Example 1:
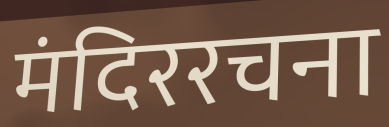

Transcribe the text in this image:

मंदिररचना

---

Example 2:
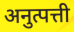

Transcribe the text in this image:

अनुत्पत्ती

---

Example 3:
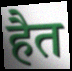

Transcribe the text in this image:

हैत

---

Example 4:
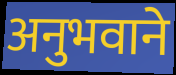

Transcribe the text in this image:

अनुभवाने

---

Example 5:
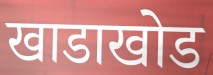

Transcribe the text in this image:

खाडाखोड